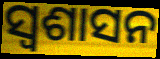
ସ୍ବଶାସନ